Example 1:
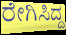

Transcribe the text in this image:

ರೇಗಿಸಿದ್ದ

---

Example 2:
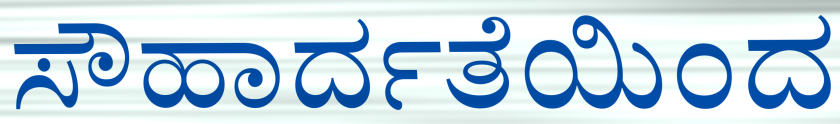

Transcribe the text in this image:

ಸೌಹಾರ್ದತೆಯಿಂದ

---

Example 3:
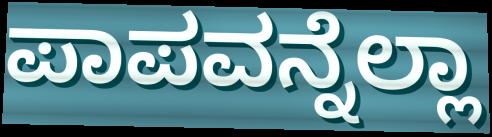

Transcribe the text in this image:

ಪಾಪವನ್ನೆಲ್ಲಾ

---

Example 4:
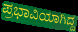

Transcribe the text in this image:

ಪ್ರಭಾವಿಯಾಗಿದ್ದ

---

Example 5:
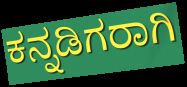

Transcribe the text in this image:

ಕನ್ನಡಿಗರಾಗಿ